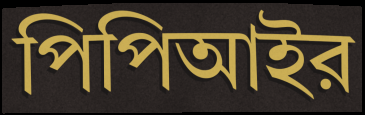
পিপিআইর